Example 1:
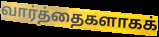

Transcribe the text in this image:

வார்த்தைகளாகக்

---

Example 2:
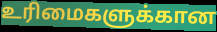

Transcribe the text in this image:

உரிமைகளுக்கான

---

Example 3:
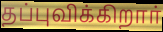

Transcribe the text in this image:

தப்புவிக்கிறார்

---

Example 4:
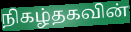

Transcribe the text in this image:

நிகழ்தகவின்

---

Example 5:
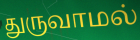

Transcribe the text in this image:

துருவாமல்